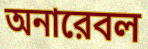
অনারেবল